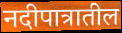
नदीपात्रातील